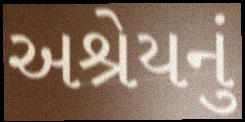
અશ્રેયનું